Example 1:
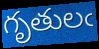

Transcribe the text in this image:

గృతులఁ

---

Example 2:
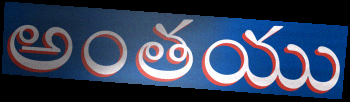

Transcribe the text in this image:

అంతయు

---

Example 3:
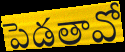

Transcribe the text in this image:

పెడతావో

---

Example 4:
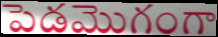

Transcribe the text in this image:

పెడమొగంగా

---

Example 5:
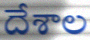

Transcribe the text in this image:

దేశాల